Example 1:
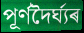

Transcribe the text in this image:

পূৰ্ণদৈৰ্ঘ্যৰ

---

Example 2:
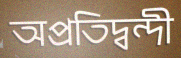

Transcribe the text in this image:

অপ্ৰতিদ্বন্দী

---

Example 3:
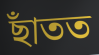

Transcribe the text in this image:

ছাঁতত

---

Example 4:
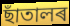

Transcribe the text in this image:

ছাঁতালৰ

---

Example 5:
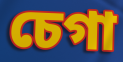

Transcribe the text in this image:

চেগা